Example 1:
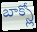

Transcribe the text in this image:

బాక్స్లో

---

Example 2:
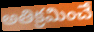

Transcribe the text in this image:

అతిక్రమించే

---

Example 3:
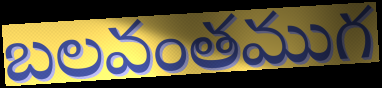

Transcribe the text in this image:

బలవంతముగ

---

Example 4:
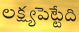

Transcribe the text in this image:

లక్ష్యపెట్టేది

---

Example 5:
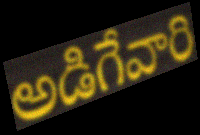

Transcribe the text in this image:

అడిగేవారి